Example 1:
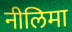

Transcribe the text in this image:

नीलिमा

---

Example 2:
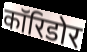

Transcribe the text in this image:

कॉरिडोर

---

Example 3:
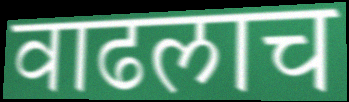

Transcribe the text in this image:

वाढलाच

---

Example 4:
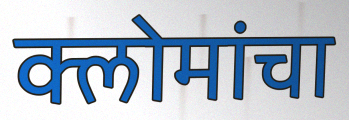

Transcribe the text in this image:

क्लोमांचा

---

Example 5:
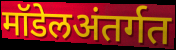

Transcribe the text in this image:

मॉडेलअंतर्गत